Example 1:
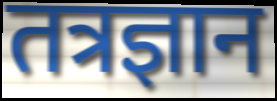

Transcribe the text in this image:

तत्रज्ञान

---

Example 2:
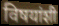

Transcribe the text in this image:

विषयांशी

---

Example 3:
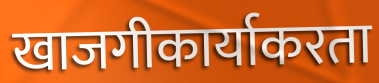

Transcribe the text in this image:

खाजगीकार्याकरता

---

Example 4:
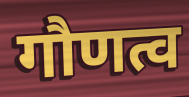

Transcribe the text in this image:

गौणत्व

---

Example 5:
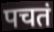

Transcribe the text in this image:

पचतं